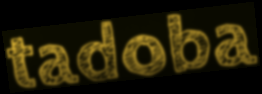
tadoba